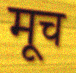
मूच